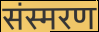
संस्मरण